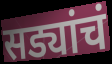
सड्यांचं